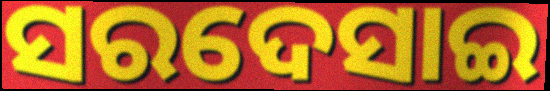
ସରଦେସାଇ